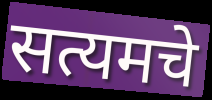
सत्यमचे